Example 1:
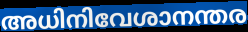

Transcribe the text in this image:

അധിനിവേശാനന്തര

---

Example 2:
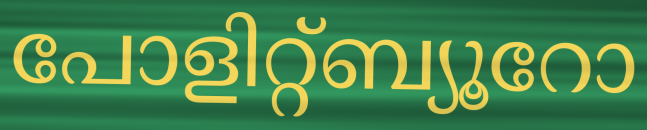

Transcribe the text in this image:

പോളിറ്റ്ബ്യൂറോ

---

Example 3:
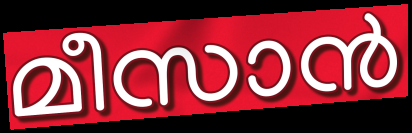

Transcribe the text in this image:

മീസാൻ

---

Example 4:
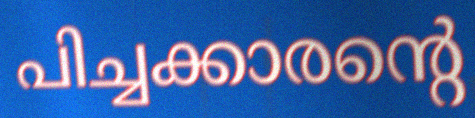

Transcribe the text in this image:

പിച്ചക്കാരന്റെ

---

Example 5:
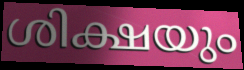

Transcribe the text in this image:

ശിക്ഷയും